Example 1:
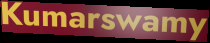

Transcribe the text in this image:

Kumarswamy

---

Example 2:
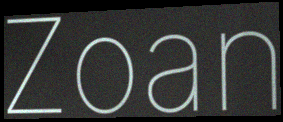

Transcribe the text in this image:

Zoan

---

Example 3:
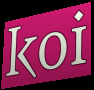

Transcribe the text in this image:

koi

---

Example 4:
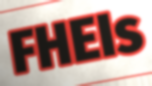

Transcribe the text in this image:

FHEIs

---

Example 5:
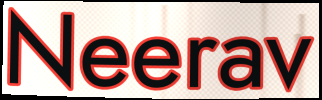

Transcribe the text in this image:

Neerav